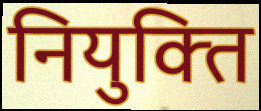
नियुक्‍ति